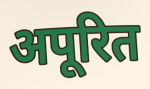
अपूरित